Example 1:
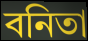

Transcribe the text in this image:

বনিতা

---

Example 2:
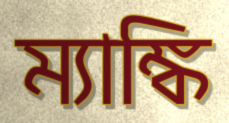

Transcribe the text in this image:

ম্যাঙ্কি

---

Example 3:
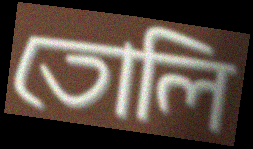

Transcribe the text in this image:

তোলি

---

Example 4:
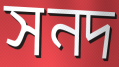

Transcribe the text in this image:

সনদ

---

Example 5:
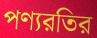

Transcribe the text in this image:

পণ্যরতির